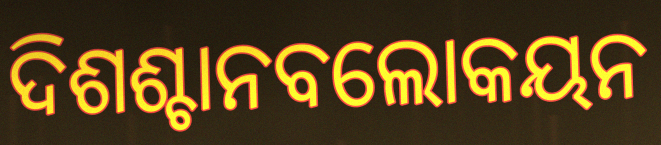
ଦିଶଶ୍ଚାନବଲୋକୟନ